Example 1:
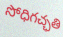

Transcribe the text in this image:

సోధిగచ్ఛతి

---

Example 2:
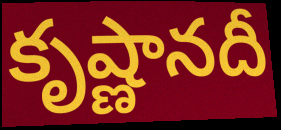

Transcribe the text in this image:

కృష్ణానదీ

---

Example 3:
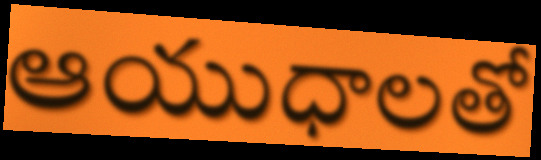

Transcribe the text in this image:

ఆయుధాలతో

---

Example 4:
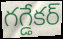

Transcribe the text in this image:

గగ్డేకర్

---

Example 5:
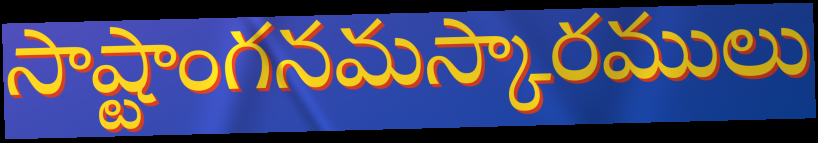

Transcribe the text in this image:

సాష్టాంగనమస్కారములు